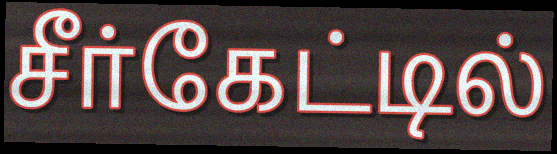
சீர்கேட்டில்